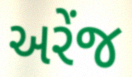
અરેંજ